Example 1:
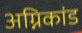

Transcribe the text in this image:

अग्निकांड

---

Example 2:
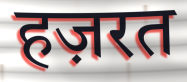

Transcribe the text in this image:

हज़रत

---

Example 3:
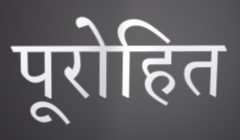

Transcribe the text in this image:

पूरोहित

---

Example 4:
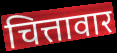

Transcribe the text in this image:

चित्तावार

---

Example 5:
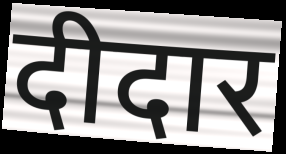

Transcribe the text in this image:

दीदार